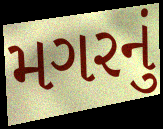
મગરનું